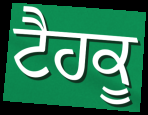
ਟੈਹਕੂ